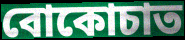
বোকোচাত